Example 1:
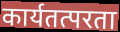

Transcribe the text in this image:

कार्यतत्परता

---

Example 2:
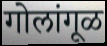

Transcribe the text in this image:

गोलांगूळ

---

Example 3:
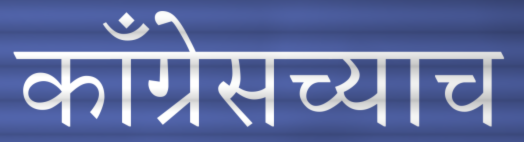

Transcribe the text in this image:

कॉंग्रेसच्याच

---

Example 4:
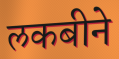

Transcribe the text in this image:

लकबीने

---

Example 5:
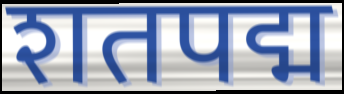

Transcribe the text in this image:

शतपद्म